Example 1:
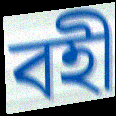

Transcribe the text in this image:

বহী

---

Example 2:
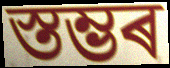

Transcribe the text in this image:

স্তম্ভৰ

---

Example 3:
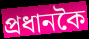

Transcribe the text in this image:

প্ৰধানকৈ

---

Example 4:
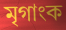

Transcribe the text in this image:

মৃগাংক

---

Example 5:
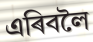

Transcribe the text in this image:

এৰিবলৈ